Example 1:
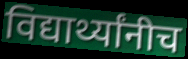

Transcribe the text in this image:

विद्यार्थ्यांनीच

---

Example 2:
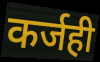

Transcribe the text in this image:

कर्जही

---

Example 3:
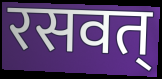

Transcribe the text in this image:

रसवत्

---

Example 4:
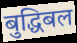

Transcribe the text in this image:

बुद्धिबल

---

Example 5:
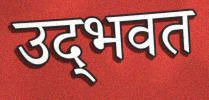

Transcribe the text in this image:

उद्‌भवत